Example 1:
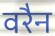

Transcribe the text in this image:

वरैन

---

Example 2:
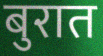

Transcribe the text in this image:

बुरात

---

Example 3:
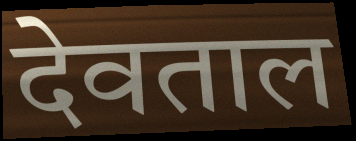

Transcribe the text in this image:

देवताल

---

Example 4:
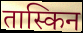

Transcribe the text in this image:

तास्किन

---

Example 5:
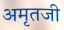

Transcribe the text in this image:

अमृतजी